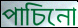
পাচিনো